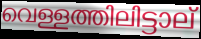
വെള്ളത്തിലിട്ടാല്